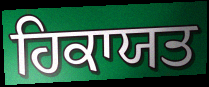
ਹਿਕਾਯਤ